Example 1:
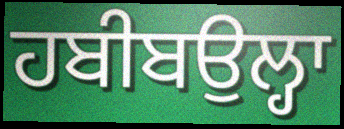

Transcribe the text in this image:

ਹਬੀਬਉਲ੍ਹਾ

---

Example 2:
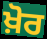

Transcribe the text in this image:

ਖ਼ੋਰ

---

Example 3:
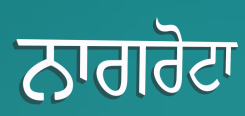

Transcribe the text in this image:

ਨਾਗਰੋਟਾ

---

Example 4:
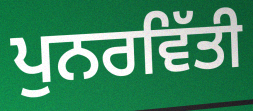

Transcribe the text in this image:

ਪੁਨਰਵਿੱਤੀ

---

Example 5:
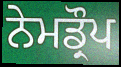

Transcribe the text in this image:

ਨੇਮਡ੍ਰੌਪ